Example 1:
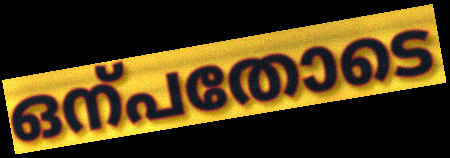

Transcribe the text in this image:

ഒന്പതോടെ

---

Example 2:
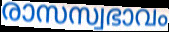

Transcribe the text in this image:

രാസസ്വഭാവം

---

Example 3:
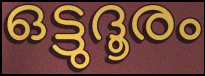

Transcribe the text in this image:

ഒട്ടുദൂരം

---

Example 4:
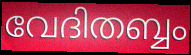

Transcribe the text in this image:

വേദിതബ്ബം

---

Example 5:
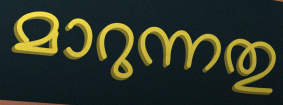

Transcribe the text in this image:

മാറുന്നതു